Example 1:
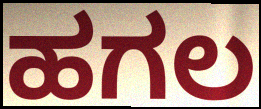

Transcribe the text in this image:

ಹಗಲ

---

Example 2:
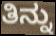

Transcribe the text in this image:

ತಿನ್ನು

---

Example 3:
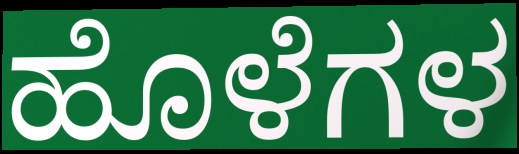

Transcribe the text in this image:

ಹೊಳೆಗಳ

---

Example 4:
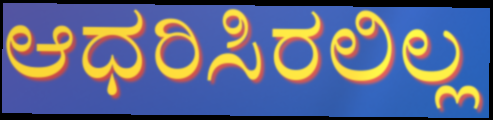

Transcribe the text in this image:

ಆಧರಿಸಿರಲಿಲ್ಲ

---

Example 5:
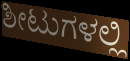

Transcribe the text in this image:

ಶೀಟುಗಳಲ್ಲಿ